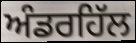
ਅੰਡਰਹਿੱਲ